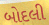
બોદલી